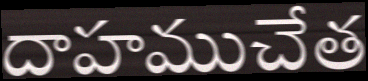
దాహముచేత